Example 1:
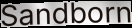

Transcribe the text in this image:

Sandborn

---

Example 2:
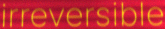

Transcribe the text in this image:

irreversible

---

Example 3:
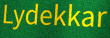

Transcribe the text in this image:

Lydekkar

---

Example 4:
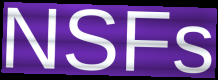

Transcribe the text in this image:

NSFs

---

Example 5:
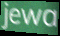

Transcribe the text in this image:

jewa